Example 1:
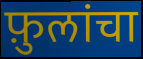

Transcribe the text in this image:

फ़ुलांचा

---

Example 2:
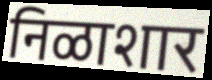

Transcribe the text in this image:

निळाशार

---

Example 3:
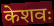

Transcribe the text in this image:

केशवः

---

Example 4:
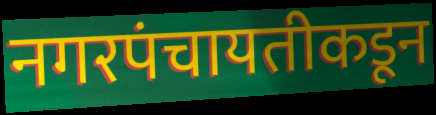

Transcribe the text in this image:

नगरपंचायतीकडून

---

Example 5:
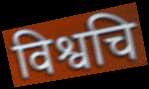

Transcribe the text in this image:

विश्वचि